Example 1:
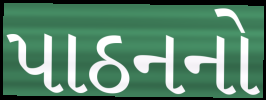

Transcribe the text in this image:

પાઠનનો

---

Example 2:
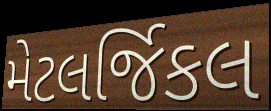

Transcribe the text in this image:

મેટલર્જિકલ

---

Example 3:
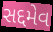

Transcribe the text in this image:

સદ્દમેવ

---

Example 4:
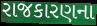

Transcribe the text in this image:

રાજકારણના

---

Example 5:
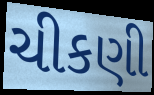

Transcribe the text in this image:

ચીકણી